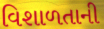
વિશાળતાની